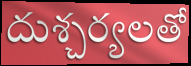
దుశ్చర్యలతో